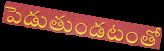
పెడుతుండటంతో